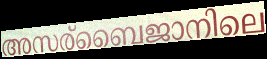
അസര്ബൈജാനിലെ